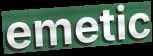
emetic